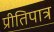
प्रीतिपात्र